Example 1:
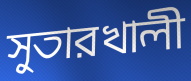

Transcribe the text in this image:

সুতারখালী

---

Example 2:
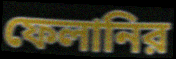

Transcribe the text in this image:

ফেলানির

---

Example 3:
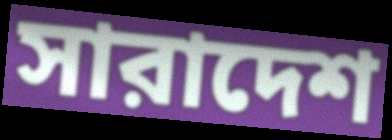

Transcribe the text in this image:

সারাদেশ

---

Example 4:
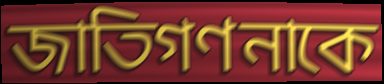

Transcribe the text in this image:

জাতিগণনাকে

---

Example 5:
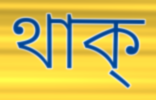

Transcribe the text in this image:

থাক্